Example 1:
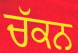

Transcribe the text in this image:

ਚੱਕਨ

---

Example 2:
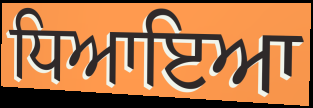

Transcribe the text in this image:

ਧਿਆਇਆ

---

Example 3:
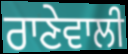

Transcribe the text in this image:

ਰਾਣੇਵਾਲੀ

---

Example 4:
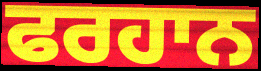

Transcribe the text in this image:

ਫਰਹਾਨ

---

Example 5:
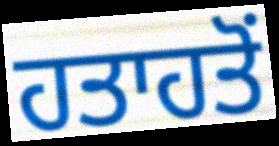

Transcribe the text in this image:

ਹਤਾਹਤੋਂ